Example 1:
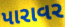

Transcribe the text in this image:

પારાવર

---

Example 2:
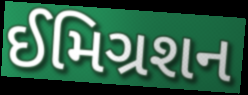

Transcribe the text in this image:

ઈમિગ્રશન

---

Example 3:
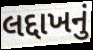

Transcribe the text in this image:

લદ્દાખનું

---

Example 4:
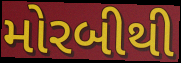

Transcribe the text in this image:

મોરબીથી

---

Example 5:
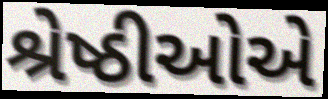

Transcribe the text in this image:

શ્રેષ્ઠીઓએ